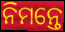
ନିମନ୍ତେ